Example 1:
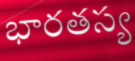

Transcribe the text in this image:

భారతస్య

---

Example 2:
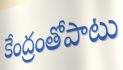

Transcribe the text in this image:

కేంద్రంతోపాటు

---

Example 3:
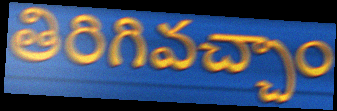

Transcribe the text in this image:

తిరిగివచ్చాం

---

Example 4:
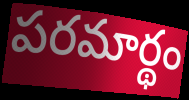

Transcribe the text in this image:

పరమార్థం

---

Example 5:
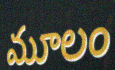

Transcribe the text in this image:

మూలం